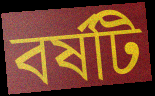
বর্ষটি